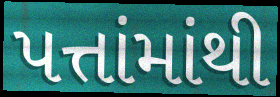
પત્તાંમાંથી